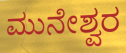
ಮುನೇಶ್ವರ